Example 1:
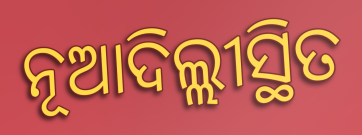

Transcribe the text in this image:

ନୂଆଦିଲ୍ଲୀସ୍ଥିତ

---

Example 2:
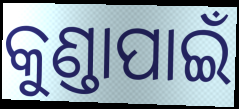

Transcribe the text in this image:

କୁଣ୍ଡାପାଇଁ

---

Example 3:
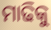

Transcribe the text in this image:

ମାଢିକୁ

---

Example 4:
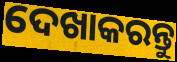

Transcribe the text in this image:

ଦେଖାକରନ୍ତୁ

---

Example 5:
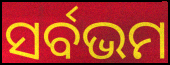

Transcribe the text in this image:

ସର୍ବଭମ